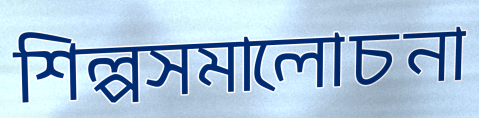
শিল্পসমালোচনা